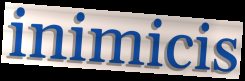
inimicis